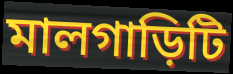
মালগাড়িটি